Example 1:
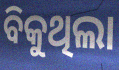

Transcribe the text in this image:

ବିକୁଥିଲା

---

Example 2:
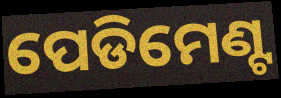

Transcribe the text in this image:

ପେଡିମେଣ୍ଟ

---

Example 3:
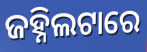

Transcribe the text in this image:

ଜହ୍ନିଲଟାରେ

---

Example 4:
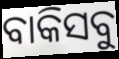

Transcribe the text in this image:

ବାକିସବୁ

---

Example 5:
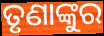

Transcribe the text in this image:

ତୃଣାଙ୍କୁର